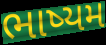
ભાષ્યમ